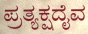
ಪ್ರತ್ಯಕ್ಷದೈವ